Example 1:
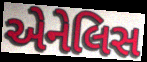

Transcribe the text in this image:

એનેલિસ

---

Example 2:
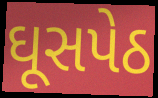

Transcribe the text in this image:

ઘૂસપેઠ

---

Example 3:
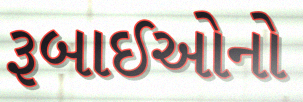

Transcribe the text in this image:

રૂબાઈઓનો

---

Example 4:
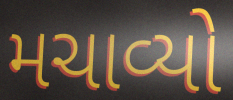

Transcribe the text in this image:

મચાવ્યો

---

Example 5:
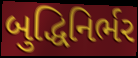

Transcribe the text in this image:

બુદ્ધિનિર્ભર